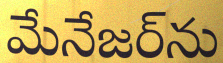
మేనేజర్‌ను